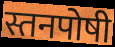
स्तनपोषी